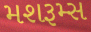
મશરૂમ્સ